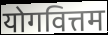
योगवित्तम